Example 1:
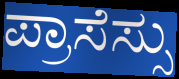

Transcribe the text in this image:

ಪ್ರಾಸೆಸ್ಸು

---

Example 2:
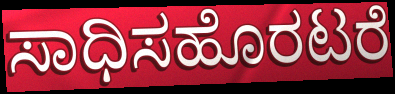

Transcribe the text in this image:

ಸಾಧಿಸಹೊರಟರೆ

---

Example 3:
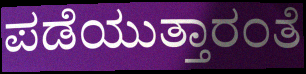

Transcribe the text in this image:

ಪಡೆಯುತ್ತಾರಂತೆ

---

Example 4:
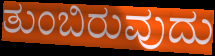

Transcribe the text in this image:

ತುಂಬಿರುವುದು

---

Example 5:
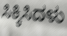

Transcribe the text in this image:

ಸಿಕ್ಕಿಸಿದಳು